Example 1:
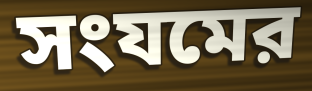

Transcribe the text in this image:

সংযমের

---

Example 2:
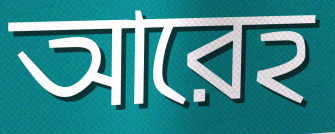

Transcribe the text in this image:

আরেহ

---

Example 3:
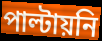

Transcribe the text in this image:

পাল্টায়নি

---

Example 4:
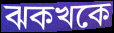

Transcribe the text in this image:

ঝকখকে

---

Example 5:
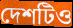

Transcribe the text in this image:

দেশটিও